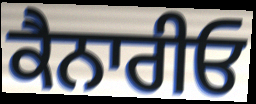
ਕੈਨਾਰੀਓ